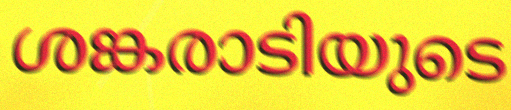
ശങ്കരാടിയുടെ